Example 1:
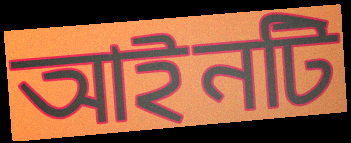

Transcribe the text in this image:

আইনটি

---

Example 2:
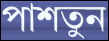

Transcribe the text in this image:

পাশতুন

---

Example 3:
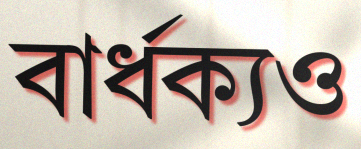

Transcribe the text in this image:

বার্ধক্যও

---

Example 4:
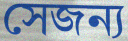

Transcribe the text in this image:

সেজন্য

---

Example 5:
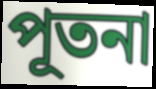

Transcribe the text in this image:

পূতনা